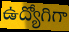
ఉద్యోగిగా